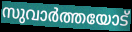
സുവാർത്തയോട്